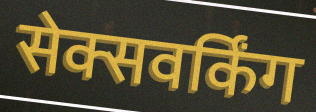
सेक्सवर्किंग